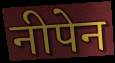
नीपेन